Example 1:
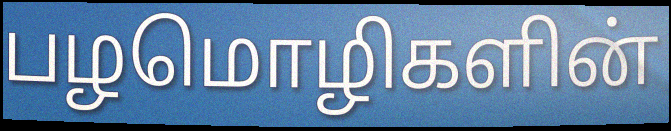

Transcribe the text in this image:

பழமொழிகளின்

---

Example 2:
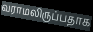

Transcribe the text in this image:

வராமலிருப்பதாக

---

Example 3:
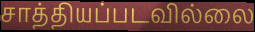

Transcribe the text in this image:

சாத்தியப்படவில்லை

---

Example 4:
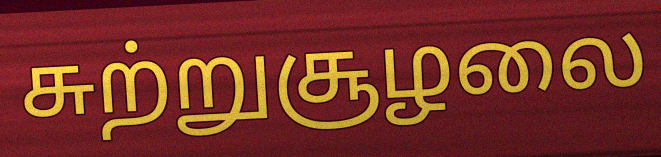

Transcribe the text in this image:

சுற்றுசூழலை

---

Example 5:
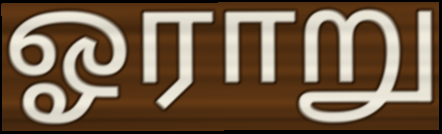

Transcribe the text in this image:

ஓராறு